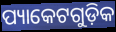
ପ୍ୟାକେଟଗୁଡ଼ିକ